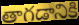
తాగడానికి